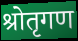
श्रोतृगण